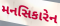
મનસિકારેન